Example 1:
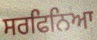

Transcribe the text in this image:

ਸਰਫਿਨਿਆ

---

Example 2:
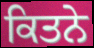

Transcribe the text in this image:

ਕਿਤਨੇ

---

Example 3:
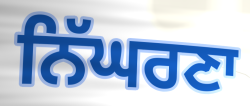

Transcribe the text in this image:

ਨਿੱਘਰਣਾ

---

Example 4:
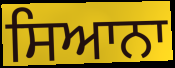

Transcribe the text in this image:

ਸਿਆਨਾ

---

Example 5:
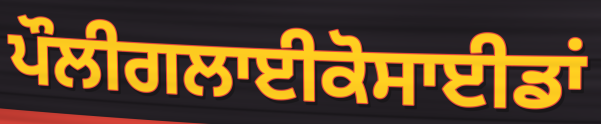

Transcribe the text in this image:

ਪੌਲੀਗਲਾਈਕੋਸਾਈਡਾਂ